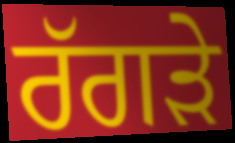
ਰੱਗੜੇ